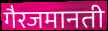
गैरजमानती